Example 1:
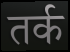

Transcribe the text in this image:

तर्क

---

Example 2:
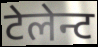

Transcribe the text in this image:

टेलेन्ट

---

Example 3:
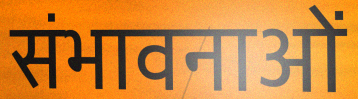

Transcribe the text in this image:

संभावनाओं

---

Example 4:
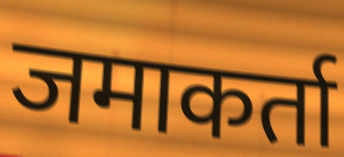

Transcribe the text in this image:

जमाकर्ता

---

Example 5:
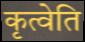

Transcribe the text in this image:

कृत्वेति